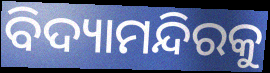
ବିଦ୍ୟାମନ୍ଦିରକୁ